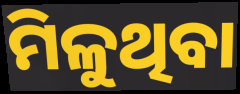
ମିଳୁଥିବା